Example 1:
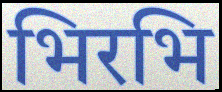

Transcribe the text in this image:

भिरभि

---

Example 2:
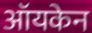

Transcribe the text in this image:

ऑयकेन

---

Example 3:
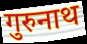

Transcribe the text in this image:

गुरुनाथ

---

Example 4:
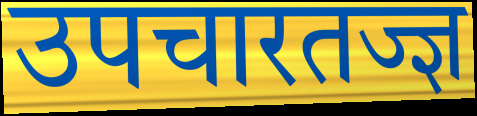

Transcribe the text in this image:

उपचारतज्ज्ञ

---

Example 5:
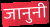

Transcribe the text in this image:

जानुनी